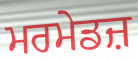
ਮਰਮੇਡਜ਼